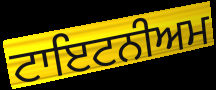
ਟਾਇਟਨੀਅਮ